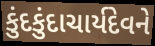
કુંદકુંદાચાર્યદેવને